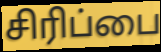
சிரிப்பை